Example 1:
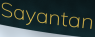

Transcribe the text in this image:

Sayantan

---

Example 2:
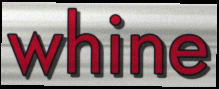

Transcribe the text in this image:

whine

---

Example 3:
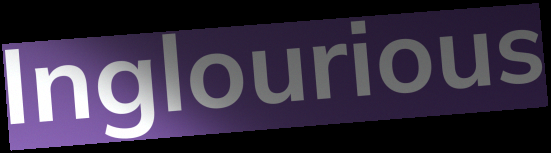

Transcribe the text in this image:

Inglourious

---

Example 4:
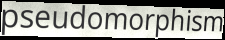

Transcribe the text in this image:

pseudomorphism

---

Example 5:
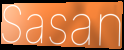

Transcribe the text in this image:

Sasan